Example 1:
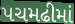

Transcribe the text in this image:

પચમઢીમાં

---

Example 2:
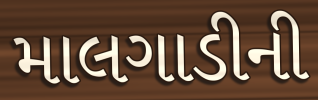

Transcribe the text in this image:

માલગાડીની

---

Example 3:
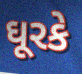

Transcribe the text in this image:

ઘૂરકે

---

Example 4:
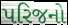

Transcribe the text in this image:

પરિજનો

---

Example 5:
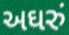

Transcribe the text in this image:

અઘરું